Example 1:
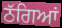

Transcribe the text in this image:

ਠੱਗਿਆਂ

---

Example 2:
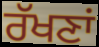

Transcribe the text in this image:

ਰੱਖਣਾਂ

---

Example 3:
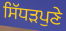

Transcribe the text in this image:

ਸਿੱਧੜਪੁਣੇ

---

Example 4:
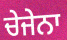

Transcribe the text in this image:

ਚੇਜੇਨਾ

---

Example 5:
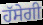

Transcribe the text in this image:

ਹੱਸੇਗੀ